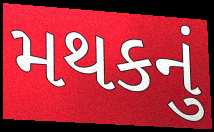
મથકનું